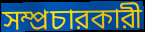
সম্প্রচারকারী